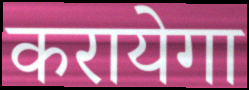
करायेगा